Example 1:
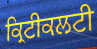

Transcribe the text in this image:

ਕ੍ਰਿਟੀਕਲਟੀ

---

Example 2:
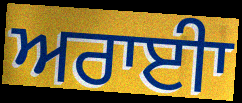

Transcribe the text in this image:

ਅਰਾਈਾ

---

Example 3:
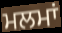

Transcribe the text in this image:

ਮਲਮਾਂ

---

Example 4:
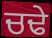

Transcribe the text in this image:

ਚਢੇ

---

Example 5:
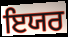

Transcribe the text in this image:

ਇਯਰ